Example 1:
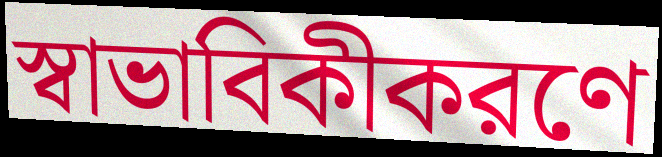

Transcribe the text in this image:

স্বাভাবিকীকরণে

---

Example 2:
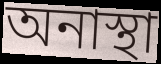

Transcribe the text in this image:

অনাস্থা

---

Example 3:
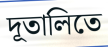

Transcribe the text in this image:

দূতালিতে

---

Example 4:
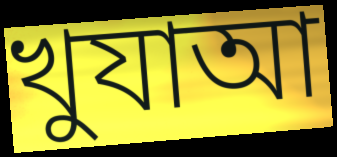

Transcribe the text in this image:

খুযাআ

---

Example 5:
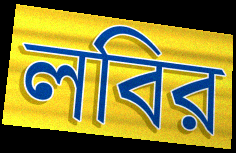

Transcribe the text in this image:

লবির